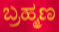
ಬ್ರಹ್ಮಣ